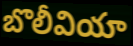
బొలీవియా